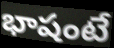
భాషంటే